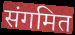
संगमित